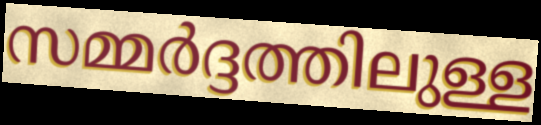
സമ്മർദ്ദത്തിലുള്ള